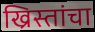
ख्रिस्तांचा